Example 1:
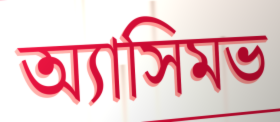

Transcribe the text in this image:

অ্যাসিমভ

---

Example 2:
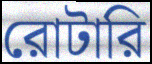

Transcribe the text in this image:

রোটারি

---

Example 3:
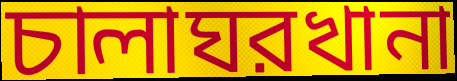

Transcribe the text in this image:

চালাঘরখানা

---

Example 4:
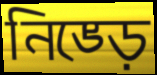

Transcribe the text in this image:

নিঙ্ড়ে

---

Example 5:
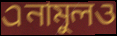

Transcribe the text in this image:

এনামুলও